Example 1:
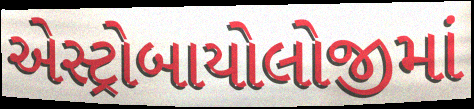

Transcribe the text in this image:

એસ્ટ્રોબાયોલોજીમાં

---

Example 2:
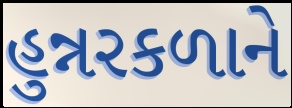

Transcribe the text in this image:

હુન્નરકળાને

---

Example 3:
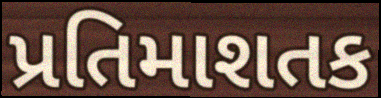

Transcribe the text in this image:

પ્રતિમાશતક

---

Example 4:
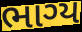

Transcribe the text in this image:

ભાગ્ય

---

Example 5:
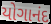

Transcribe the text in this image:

યોગાનંદ